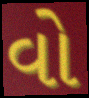
વો